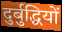
दुर्बुद्धियों